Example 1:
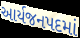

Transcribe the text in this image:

આર્યજનપદમાં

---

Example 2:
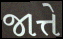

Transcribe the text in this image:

જાત્તે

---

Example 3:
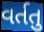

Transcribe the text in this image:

વર્તતુ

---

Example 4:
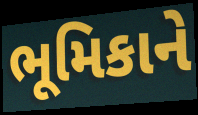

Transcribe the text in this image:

ભૂમિકાને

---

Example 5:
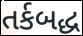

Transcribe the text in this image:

તર્કબદ્ધ